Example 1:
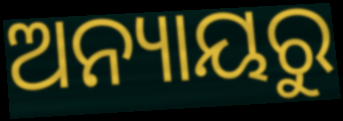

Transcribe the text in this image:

ଅନ୍ୟାୟରୁ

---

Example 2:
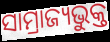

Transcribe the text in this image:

ସାମ୍ରାଜ୍ୟଭୁକ୍ତ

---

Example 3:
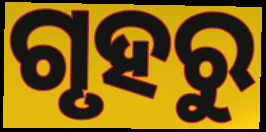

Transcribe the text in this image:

ଗୃହରୁ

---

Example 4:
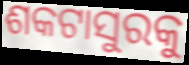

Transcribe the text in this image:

ଶକଟାସୁରକୁ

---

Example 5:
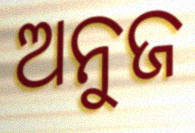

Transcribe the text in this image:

ଅନୁଜ